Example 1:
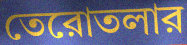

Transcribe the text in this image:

তেরোতলার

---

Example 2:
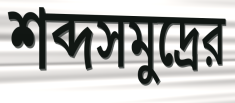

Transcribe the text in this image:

শব্দসমুদ্রের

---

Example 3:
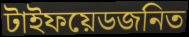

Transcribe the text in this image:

টাইফয়েডজনিত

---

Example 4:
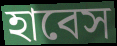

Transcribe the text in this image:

হাবেস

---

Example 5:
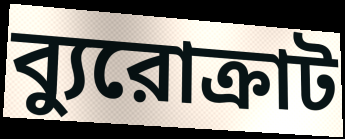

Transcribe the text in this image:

ব্যুরোক্রাট